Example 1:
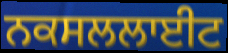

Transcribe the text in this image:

ਨਕਸਲਲਾਈਟ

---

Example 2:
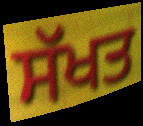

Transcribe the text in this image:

ਸੱਖਤ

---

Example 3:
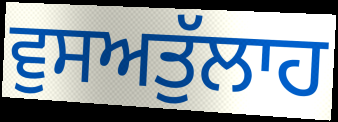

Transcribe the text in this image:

ਵੁਸਅਤੁੱਲਾਹ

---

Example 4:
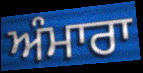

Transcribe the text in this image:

ਅੰਮਾਰਾ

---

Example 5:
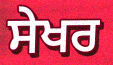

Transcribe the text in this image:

ਸੇਖਰ